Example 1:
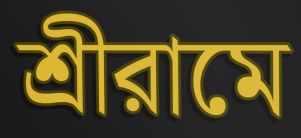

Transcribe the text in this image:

শ্রীরামে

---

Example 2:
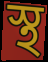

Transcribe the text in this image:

স্থ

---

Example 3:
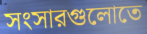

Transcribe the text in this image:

সংসারগুলোতে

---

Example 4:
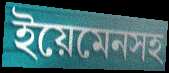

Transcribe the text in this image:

ইয়েমেনসহ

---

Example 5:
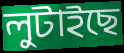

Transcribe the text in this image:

লুটাইছে